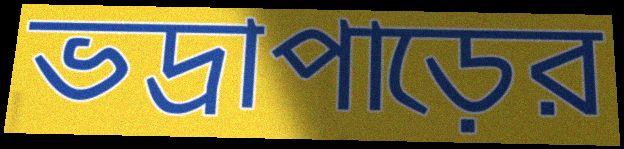
ভদ্রাপাড়ের